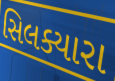
સિલક્યારા